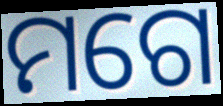
ମଗେ